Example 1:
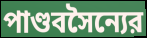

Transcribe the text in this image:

পাণ্ডবসৈন্যের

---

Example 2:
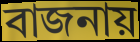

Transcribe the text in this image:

বাজনায়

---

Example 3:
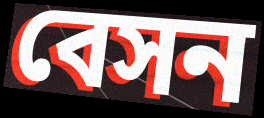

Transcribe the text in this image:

বেসন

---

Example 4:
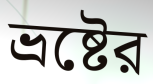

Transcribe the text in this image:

ভ্রষ্টের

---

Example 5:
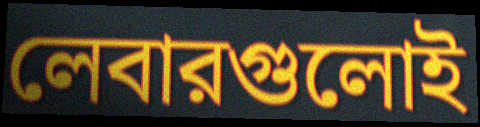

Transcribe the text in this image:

লেবারগুলোই